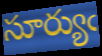
సూర్యుఁ